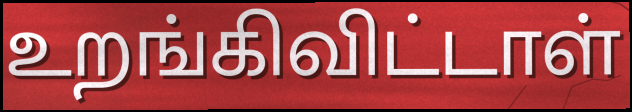
உறங்கிவிட்டாள்